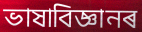
ভাষাবিজ্ঞানৰ